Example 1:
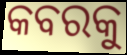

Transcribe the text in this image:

କବରକୁ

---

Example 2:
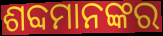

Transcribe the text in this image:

ଶବ୍ଦମାନଙ୍କର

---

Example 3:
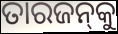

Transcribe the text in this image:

ତାରଜନ୍‌କୁ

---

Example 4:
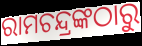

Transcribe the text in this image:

ରାମଚନ୍ଦ୍ରଙ୍କଠାରୁ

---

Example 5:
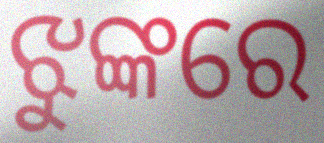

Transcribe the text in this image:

ଝୁଙ୍କରେ